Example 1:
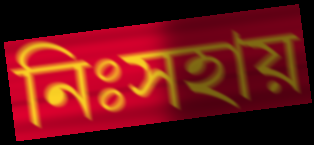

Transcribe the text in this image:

নিঃসহায়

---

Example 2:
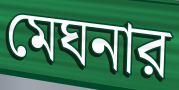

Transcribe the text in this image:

মেঘনার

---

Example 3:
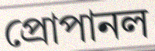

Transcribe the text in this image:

প্রোপানল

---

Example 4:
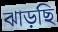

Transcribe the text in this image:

ঝাড়ছি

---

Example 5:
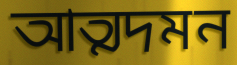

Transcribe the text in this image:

আত্মদমন